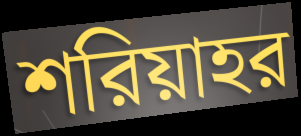
শরিয়াহর